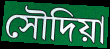
সৌদিয়া